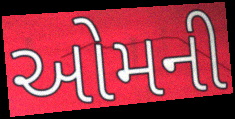
ઓમની